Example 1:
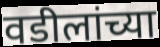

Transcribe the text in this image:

वडीलांच्या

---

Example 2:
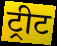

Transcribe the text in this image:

ट्रीट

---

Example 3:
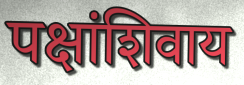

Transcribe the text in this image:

पक्षांशिवाय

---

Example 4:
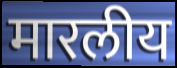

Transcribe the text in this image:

मारलीय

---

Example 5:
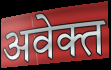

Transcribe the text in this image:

अवेक्त